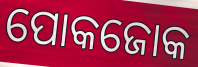
ପୋକଜୋକ